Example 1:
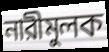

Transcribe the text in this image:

নারীমুলক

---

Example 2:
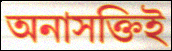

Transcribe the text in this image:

অনাসক্তিই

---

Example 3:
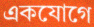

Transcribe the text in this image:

একযোগে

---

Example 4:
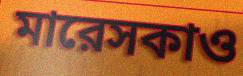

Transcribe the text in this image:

মারেসকাও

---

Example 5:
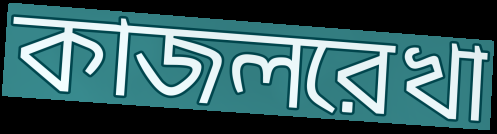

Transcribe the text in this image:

কাজলরেখা